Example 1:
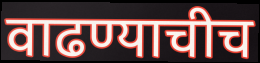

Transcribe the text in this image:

वाढण्याचीच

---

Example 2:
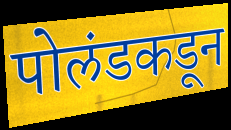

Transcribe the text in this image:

पोलंडकडून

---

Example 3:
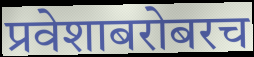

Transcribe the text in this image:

प्रवेशाबरोबरच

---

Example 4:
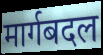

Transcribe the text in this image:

मार्गबदल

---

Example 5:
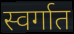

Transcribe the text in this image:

स्वर्गात